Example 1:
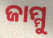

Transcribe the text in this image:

ଜାମ୍ମୁ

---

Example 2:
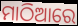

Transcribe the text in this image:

ମାଠିଆରେ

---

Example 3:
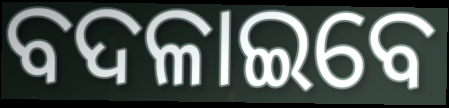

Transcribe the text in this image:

ବଦଳାଇବେ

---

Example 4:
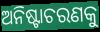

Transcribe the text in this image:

ଅନିଷ୍ଟାଚରଣକୁ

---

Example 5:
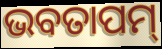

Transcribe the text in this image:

ଭବତାପମ୍